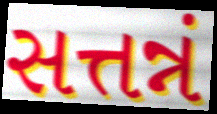
સત્તન્નં